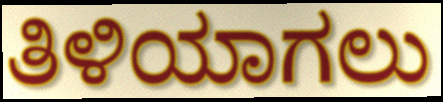
ತಿಳಿಯಾಗಲು